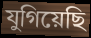
যুগিয়েছি